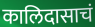
कालिदासाचं